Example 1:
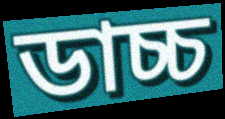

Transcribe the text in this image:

ডাচ্চ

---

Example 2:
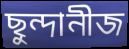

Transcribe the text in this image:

ছুন্দানীজ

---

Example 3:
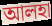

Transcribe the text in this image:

আলহা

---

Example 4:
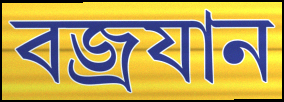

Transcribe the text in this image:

বজ্ৰযান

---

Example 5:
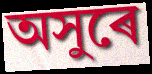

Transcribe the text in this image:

অসুৰে